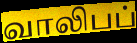
வாலிபப்